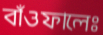
বাঁওফালেঃ